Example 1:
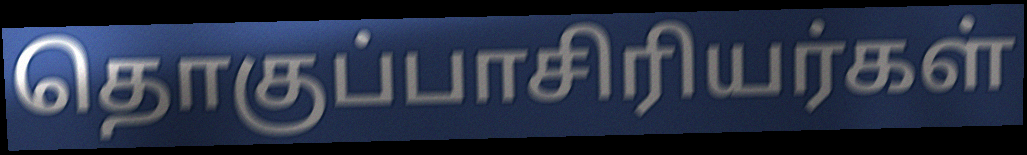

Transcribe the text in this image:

தொகுப்பாசிரியர்கள்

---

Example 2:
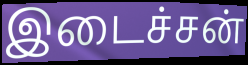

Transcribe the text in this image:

இடைச்சன்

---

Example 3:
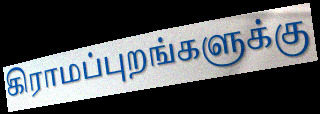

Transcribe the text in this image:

கிராமப்புறங்களுக்கு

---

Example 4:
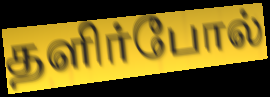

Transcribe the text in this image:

தளிர்போல்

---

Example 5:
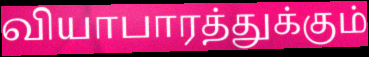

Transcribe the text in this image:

வியாபாரத்துக்கும்